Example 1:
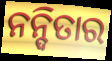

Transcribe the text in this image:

ନନ୍ଦିତାର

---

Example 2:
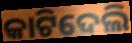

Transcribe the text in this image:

କାଟିଦେଲି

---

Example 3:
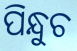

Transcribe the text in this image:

ପିନ୍ଧୁଚ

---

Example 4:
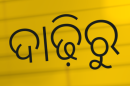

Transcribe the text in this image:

ଦାଢ଼ିରୁ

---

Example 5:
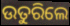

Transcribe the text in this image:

ଉତୁରିଲେ